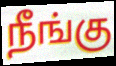
நீங்கு